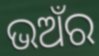
ଭଅଁର